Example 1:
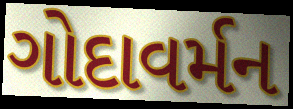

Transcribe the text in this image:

ગોદાવર્મન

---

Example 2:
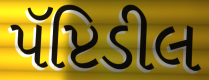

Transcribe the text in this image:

પૅપ્ટિડીલ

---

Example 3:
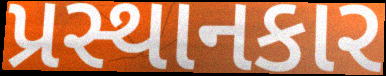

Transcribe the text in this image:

પ્રસ્થાનકાર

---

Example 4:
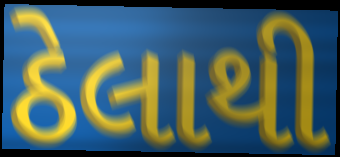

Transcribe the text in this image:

ઠેલાથી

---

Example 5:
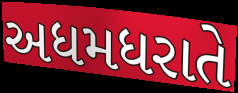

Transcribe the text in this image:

અધમધરાતે